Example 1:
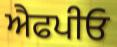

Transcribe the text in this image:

ਐਫਪੀਓ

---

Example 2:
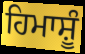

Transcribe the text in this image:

ਹਿਮਾਸ਼ੂੰ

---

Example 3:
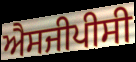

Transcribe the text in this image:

ਐਸਜੀਪੀਸੀ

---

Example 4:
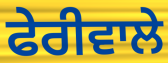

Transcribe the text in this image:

ਫੇਰੀਵਾਲੇ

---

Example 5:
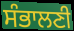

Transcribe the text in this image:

ਸੰਭਾਲਣੀ